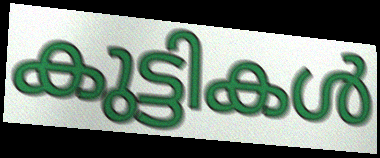
കുട്ടികൾ